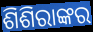
ଶିଶିରାଙ୍କର